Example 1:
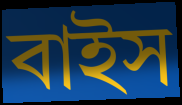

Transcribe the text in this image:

বাইস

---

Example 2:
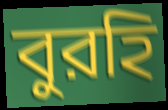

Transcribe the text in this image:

বুরহি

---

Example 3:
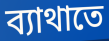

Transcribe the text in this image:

ব্যাথাতে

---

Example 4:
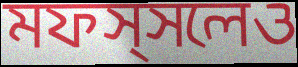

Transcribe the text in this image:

মফস্‌সলেও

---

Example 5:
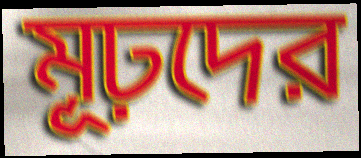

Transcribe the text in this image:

মূঢ়দের